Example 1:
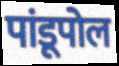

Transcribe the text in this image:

पांडूपोल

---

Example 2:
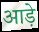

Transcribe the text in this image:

आड़े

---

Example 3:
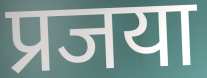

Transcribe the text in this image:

प्रजया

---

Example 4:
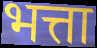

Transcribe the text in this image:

भत्ता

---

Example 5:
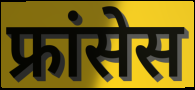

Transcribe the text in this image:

फ्रांसेस